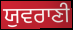
ਯੁਵਰਾਣੀ